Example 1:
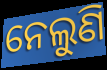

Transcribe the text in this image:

ନେଲୁଣି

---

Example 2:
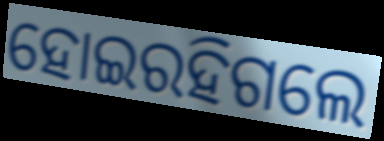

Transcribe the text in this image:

ହୋଇରହିଗଲେ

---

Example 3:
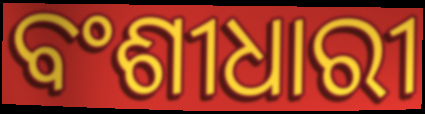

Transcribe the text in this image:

ବଂଶୀଧାରୀ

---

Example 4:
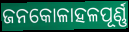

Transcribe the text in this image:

ଜନକୋଳାହଳପୂର୍ଣ୍ଣ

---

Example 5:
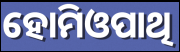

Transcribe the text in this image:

ହୋମିଓପାଥି